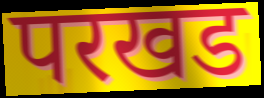
परखड